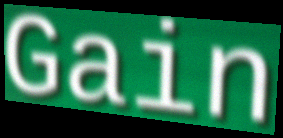
Gain